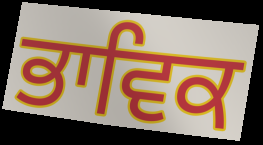
ਭਾਵਿਕ